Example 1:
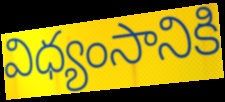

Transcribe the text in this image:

విధ్యంసానికి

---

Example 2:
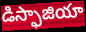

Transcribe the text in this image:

డిస్ఫాజియా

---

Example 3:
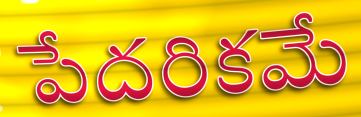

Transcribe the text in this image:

పేదరికమే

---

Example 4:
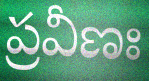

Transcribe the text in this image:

ప్రవీణః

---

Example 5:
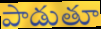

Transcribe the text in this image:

పాడుతూ